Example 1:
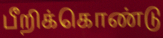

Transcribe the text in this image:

பீறிக்கொண்டு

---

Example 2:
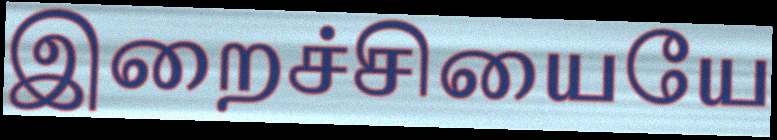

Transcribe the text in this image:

இறைச்சியையே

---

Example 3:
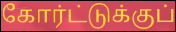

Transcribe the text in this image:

கோர்ட்டுக்குப்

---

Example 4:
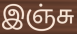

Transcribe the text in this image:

இஞ்சு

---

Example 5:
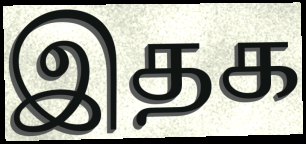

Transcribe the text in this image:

இதக